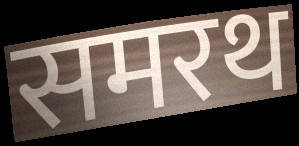
समरथ